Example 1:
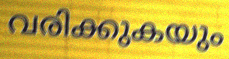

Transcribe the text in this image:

വരിക്കുകയും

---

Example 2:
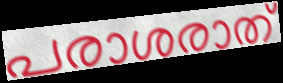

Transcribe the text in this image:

പരാശരാത്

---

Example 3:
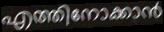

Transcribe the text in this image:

എത്തിനോക്കാൻ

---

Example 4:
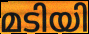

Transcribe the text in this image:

മടിയി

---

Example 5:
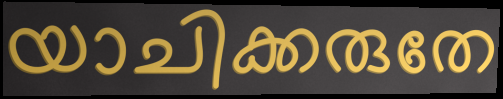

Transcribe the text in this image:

യാചിക്കരുതേ